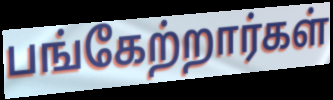
பங்கேற்றார்கள்